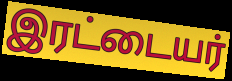
இரட்டையர்